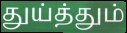
துய்த்தும்